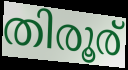
തിരൂര്